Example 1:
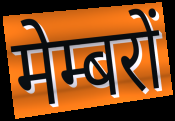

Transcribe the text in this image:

मेम्बरों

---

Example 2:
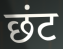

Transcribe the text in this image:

छंट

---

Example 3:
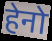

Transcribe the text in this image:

हेनो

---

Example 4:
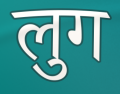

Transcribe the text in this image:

लुग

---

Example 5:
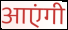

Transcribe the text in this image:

आएंगी